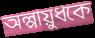
অল্পায়ুধকে